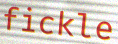
fickle